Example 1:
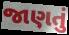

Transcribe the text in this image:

જાણતું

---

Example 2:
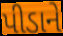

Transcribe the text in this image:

પીડાને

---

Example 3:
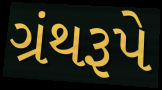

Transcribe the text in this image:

ગ્રંથરૂપે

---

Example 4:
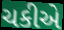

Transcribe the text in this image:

ચકીએ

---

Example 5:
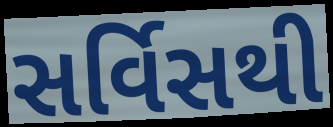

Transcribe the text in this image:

સર્વિસથી